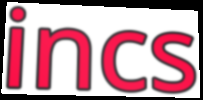
incs